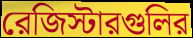
রেজিস্টারগুলির